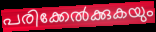
പരിക്കേൽക്കുകയും